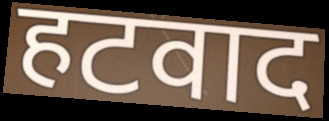
हटवाद